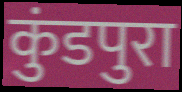
कुंडपुरा